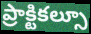
ప్రాక్టికల్సూ